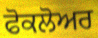
ਫੋਕਲੋਅਰ